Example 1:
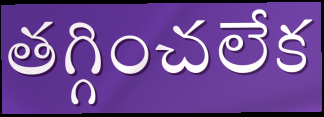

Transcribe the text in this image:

తగ్గించలేక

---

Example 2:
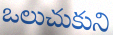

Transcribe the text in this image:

ఒలుచుకుని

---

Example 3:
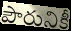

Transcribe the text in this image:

పౌరునికీ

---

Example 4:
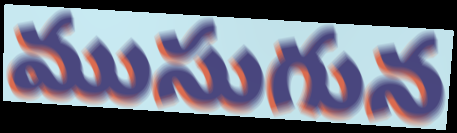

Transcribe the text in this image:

ముసుగున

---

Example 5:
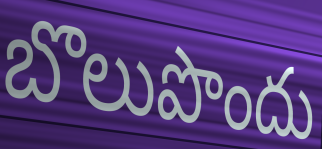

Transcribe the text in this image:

బొలుపొందు